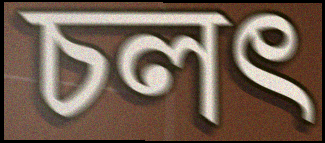
চলৎ